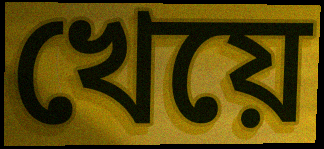
খেয়ে